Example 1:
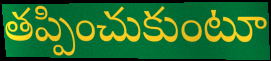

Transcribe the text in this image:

తప్పించుకుంటూ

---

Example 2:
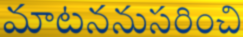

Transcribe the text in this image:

మాటననుసరించి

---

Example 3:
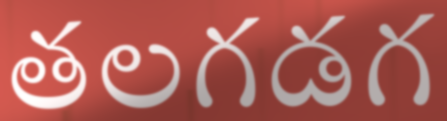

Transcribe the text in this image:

తలగడగ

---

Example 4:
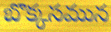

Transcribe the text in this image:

బొక్కసమున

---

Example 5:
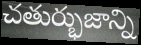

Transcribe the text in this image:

చతుర్భుజాన్ని